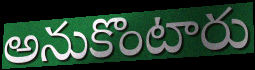
అనుకొంటారు